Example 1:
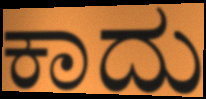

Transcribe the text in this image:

ಕಾದು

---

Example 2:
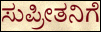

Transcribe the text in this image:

ಸುಪ್ರೀತನಿಗೆ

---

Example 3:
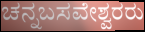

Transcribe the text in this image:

ಚನ್ನಬಸವೇಶ್ವರರು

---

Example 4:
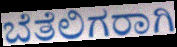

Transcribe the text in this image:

ಬೆತೆಲಿಗರಾಗಿ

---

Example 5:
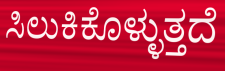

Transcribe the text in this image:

ಸಿಲುಕಿಕೊಳ್ಳುತ್ತದೆ